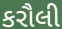
કરૌલી